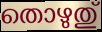
തൊഴുതു്